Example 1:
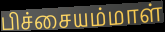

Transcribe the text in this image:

பிச்சையம்மாள்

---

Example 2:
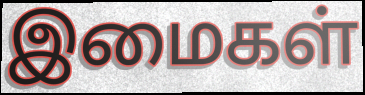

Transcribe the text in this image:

இமைகள்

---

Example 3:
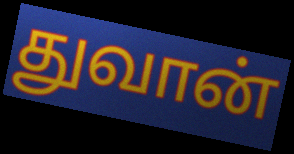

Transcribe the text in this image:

துவான்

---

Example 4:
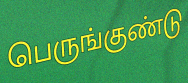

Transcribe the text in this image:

பெருங்குண்டு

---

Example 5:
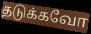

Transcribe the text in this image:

தடுக்கவோ